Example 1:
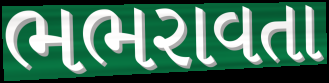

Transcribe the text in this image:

ભભરાવતા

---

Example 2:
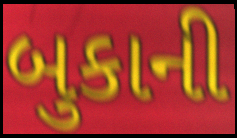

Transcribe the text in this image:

બુકાની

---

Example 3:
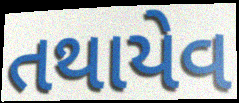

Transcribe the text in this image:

તથાયેવ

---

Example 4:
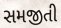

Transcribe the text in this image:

સમજીતી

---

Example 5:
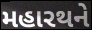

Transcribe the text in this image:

મહારથને